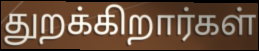
துறக்கிறார்கள்